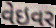
વેઇવર